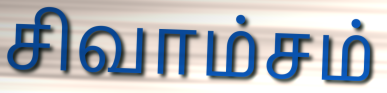
சிவாம்சம்